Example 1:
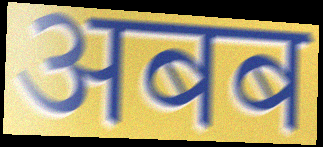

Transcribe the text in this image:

अबब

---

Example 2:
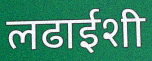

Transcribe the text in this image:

लढाईशी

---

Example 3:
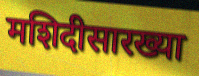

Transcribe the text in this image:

मशिदीसारख्या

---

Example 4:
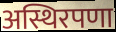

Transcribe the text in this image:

अस्थिरपणा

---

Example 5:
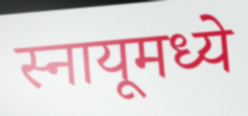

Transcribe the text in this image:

स्नायूमध्ये